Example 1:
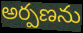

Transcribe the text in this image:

అర్పణను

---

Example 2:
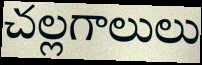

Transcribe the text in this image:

చల్లగాలులు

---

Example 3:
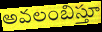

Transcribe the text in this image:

అవలంబిస్తూ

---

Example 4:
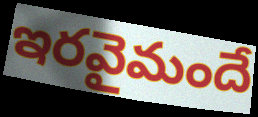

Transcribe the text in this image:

ఇరవైమందే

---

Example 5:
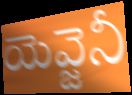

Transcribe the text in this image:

యెవ్జెనీ